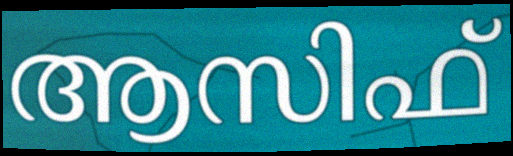
ആസിഫ്